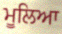
ਮੂਲਿਆ